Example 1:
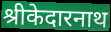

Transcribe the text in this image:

श्रीकेदारनाथ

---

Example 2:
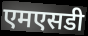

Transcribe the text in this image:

एमएसडी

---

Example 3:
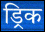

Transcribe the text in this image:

ड्रिक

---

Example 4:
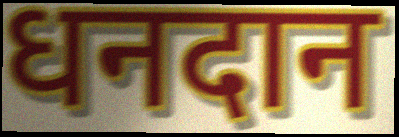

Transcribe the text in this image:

धनदान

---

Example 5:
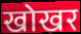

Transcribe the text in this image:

खोखर